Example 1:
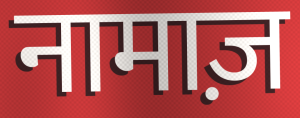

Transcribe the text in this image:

नामाज़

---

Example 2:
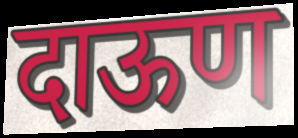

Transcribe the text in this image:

दाऊण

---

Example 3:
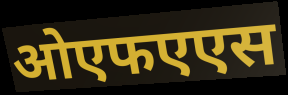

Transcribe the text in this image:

ओएफएएस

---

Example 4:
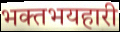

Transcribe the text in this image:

भक्तभयहारी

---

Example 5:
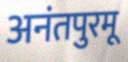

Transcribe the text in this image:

अनंतपुरमू